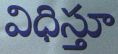
విధిస్తూ